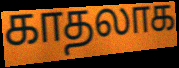
காதலாக